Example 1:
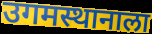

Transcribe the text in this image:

उगमस्थानाला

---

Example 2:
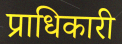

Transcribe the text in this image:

प्राधिकारी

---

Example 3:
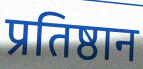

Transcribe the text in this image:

प्रतिष्ठान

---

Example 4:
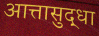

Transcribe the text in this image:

आत्तासुद्धा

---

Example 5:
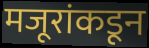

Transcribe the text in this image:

मजूरांकडून